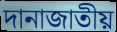
দানাজাতীয়